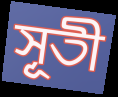
সূতী